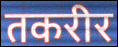
तकरीर